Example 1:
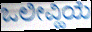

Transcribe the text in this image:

ಒಲೀವ್ಹಿಯೆ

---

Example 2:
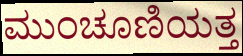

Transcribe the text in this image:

ಮುಂಚೂಣಿಯತ್ತ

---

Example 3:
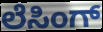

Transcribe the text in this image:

ಲೆಸಿಂಗ್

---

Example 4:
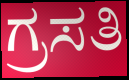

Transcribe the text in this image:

ಗ್ರಸತಿ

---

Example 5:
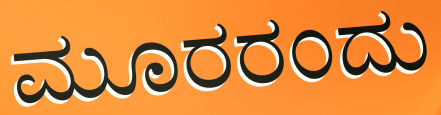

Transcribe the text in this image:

ಮೂರರಂದು